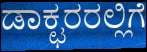
ಡಾಕ್ಟರರಲ್ಲಿಗೆ